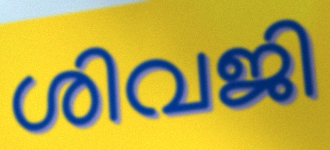
ശിവജി